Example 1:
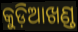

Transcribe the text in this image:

କୁଡ଼ିଆଖଣ୍ଡ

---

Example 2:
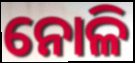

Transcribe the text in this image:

ନୋଳି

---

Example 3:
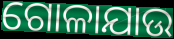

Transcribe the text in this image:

ଗୋଳାଯାଉ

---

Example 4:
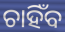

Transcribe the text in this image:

ଚାହିଁବ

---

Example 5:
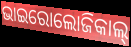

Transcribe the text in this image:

ଭାଇରୋଲୋଜିକାଲ୍